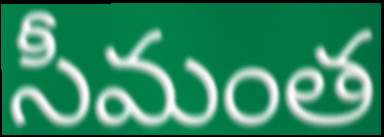
సీమంత